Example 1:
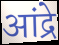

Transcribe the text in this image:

आंद्रे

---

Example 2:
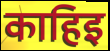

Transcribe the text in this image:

काहिइ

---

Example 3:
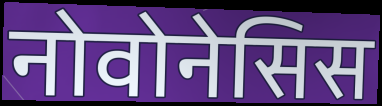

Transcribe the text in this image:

नोवोनेसिस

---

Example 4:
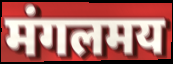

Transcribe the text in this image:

मंगलमय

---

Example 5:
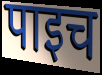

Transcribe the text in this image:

पाइच